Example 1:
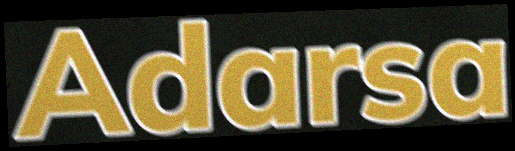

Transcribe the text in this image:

Adarsa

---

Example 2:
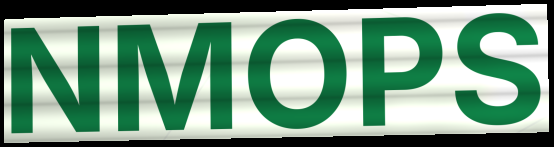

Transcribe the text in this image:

NMOPS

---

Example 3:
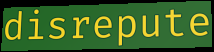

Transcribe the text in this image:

disrepute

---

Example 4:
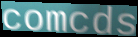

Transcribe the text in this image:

comcds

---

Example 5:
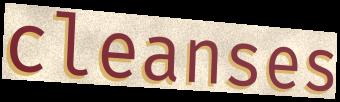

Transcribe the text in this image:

cleanses